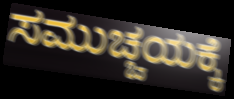
ಸಮುಚ್ಚಯಕ್ಕೆ